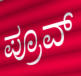
ಪ್ರೂವ್